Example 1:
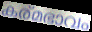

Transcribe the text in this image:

കര്മഭാവം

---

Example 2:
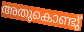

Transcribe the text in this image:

അതുകൊണ്ടു്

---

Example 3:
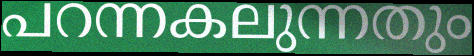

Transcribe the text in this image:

പറന്നകലുന്നതും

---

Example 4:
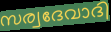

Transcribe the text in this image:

സര്വദേവാദി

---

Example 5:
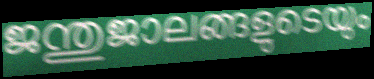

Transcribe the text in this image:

ജന്തുജാലങ്ങളുടെയും